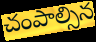
చంపాల్సిన